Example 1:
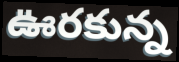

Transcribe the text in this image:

ఊరకున్న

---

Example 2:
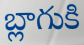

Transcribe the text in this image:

బ్లాగుకి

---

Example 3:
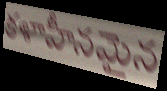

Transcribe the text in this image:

కళాహీనమైన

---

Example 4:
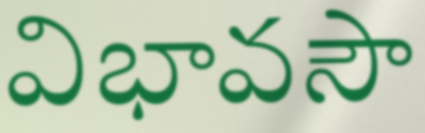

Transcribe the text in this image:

విభావసౌ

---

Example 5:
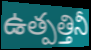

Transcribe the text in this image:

ఉత్పత్తినీ